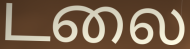
டலை